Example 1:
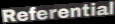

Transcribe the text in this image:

Referential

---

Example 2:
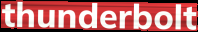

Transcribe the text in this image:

thunderbolt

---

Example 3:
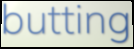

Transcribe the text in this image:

butting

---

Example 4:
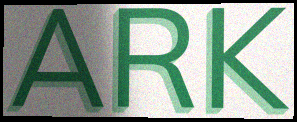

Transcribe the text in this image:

ARK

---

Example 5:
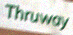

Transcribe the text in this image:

Thruway